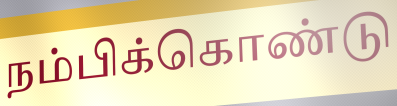
நம்பிக்கொண்டு